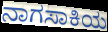
ನಾಗಸಾಕಿಯ